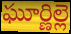
ఘూర్ణిల్లె